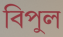
বিপুল